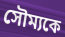
সৌম্যকে